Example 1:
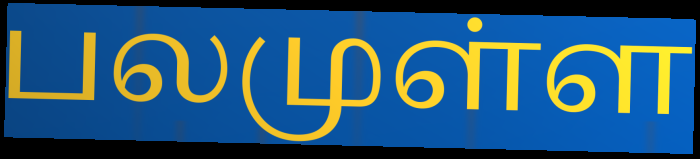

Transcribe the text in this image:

பலமுள்ள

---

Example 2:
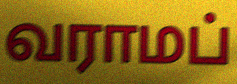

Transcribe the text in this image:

வராமப்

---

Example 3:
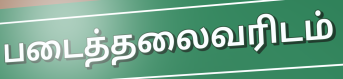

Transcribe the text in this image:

படைத்தலைவரிடம்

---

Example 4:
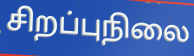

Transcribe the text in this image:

சிறப்புநிலை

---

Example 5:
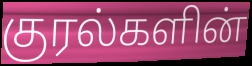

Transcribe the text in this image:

குரல்களின்